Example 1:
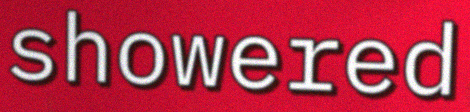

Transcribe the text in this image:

showered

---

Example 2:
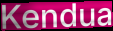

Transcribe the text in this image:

Kendua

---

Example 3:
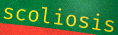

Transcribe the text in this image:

scoliosis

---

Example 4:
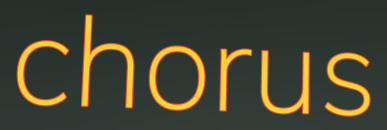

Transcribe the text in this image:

chorus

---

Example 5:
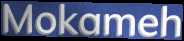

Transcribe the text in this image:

Mokameh